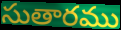
సుతారము